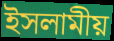
ইসলামীয়